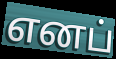
எனப்